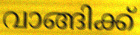
വാങ്ങിക്ക്